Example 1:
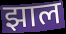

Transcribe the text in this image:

झाल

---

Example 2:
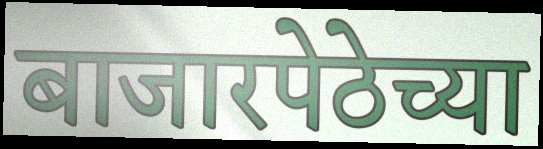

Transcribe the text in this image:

बाजारपेठेच्या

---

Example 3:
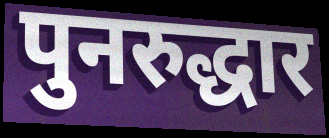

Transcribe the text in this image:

पुनरुद्धार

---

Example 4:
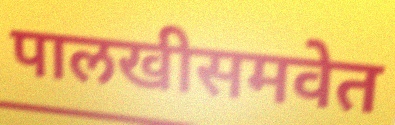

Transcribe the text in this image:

पालखीसमवेत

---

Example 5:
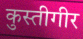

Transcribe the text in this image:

कुस्तीगीर